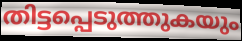
തിട്ടപ്പെടുത്തുകയും